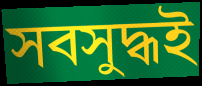
সবসুদ্ধই